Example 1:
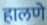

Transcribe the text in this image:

हालणे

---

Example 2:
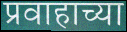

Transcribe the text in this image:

प्रवाहाच्या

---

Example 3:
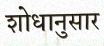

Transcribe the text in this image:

शोधानुसार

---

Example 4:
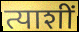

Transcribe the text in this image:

त्याशीं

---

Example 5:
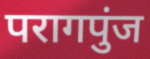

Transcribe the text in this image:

परागपुंज